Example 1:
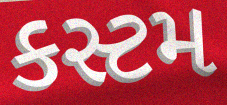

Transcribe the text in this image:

કસ્ટમ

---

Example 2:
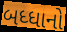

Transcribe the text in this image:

બધ્ધાનો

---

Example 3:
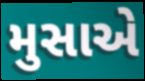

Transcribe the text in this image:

મુસાએ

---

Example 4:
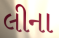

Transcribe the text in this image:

લીના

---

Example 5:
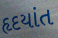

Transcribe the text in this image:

હૃદયાંત